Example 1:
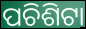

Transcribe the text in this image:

ପଚିଶିଟା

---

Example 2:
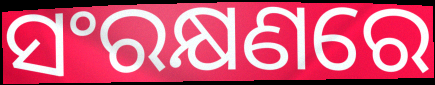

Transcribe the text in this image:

ସଂରକ୍ଷଣରେ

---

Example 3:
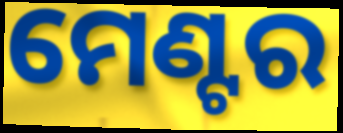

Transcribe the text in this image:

ମେଣ୍ଟର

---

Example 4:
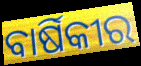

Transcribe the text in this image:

ବାର୍ଷିକୀର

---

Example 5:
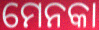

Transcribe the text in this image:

ମେନକା